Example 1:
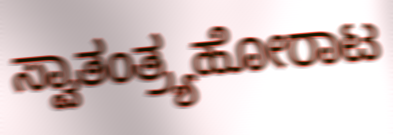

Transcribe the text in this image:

ಸ್ವಾತಂತ್ರ್ಯಹೋರಾಟ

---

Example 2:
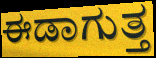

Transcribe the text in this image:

ಈಡಾಗುತ್ತ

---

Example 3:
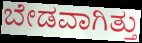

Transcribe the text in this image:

ಬೇಡವಾಗಿತ್ತು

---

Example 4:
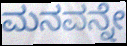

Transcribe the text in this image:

ಮನವನ್ನೇ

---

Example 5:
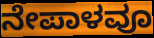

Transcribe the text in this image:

ನೇಪಾಳವೂ